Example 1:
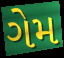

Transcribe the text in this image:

ગેમ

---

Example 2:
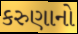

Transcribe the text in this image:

કરુણાનો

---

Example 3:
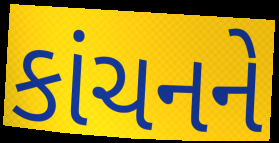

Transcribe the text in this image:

કાંચનને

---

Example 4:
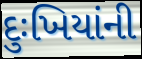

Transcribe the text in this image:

દુઃખિયાંની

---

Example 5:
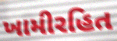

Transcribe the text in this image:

ખામીરહિત